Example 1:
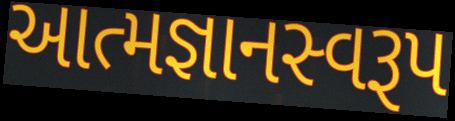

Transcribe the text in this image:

આત્મજ્ઞાનસ્વરૂપ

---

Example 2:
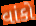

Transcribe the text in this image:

વાંકો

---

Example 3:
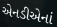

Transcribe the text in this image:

એનડીએનાં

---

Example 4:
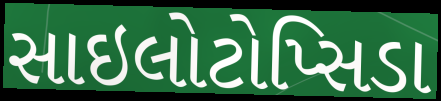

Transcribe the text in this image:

સાઇલોટોપ્સિડા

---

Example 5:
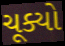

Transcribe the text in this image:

ચૂક્યો